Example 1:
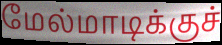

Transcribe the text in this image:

மேல்மாடிக்குச்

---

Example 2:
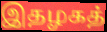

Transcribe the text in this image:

இதழகத்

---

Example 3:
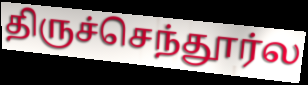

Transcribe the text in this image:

திருச்செந்தூர்ல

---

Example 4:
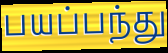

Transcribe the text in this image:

பயப்பந்து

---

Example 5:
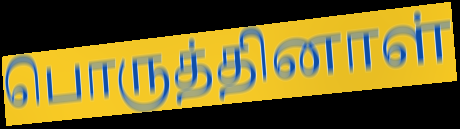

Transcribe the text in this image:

பொருத்தினாள்